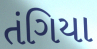
તંગિયા